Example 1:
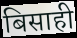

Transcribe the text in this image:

बिसाही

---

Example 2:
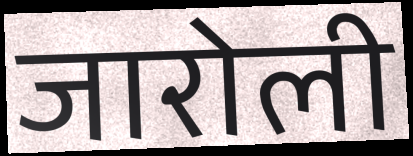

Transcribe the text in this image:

जारोली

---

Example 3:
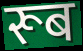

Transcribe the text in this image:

रूब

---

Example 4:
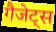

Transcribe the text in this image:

गैजेट्स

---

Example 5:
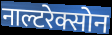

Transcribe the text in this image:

नाल्टरेक्सोन